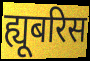
ह्यूबरिस